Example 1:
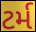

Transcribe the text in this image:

ટર્મ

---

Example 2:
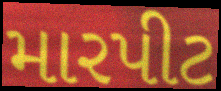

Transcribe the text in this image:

મારપીટ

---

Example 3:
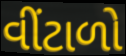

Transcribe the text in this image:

વીંટાળો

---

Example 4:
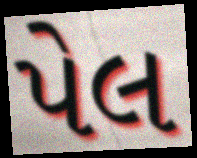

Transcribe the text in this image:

પેલ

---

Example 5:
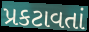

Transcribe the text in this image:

પ્રકટાવતાં